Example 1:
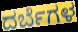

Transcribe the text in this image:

ದರ್ಬೆಗಳ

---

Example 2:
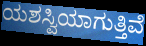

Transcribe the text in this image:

ಯಶಸ್ವಿಯಾಗುತ್ತಿವೆ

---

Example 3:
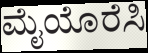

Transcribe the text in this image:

ಮೈಯೊರೆಸಿ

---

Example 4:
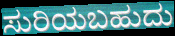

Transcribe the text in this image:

ಸುರಿಯಬಹುದು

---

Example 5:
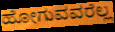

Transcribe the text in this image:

ಹೋಗುವವರೆಲ್ಲ